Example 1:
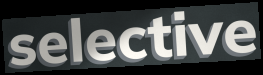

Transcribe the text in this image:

selective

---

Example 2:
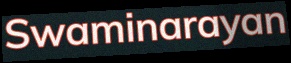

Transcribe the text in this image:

Swaminarayan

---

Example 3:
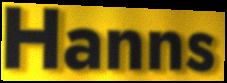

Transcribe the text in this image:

Hanns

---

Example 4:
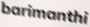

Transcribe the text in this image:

barimanthi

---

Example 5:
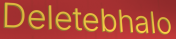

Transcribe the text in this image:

Deletebhalo